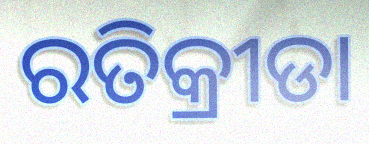
ରତିକ୍ରୀଡା